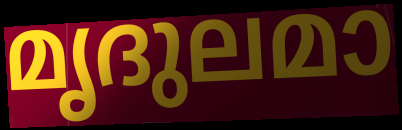
മൃദുലമാ